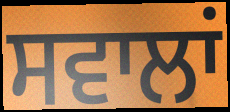
ਸਵਾਲਾਂ